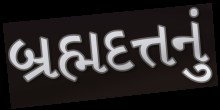
બ્રહ્મદત્તનું